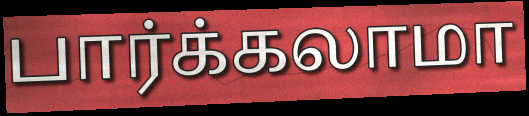
பார்க்கலாமா